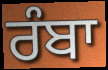
ਰੰਬਾ